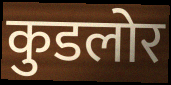
कुडलोर